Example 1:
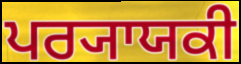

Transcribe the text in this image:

ਪਰ੍ਯਾਯਕੀ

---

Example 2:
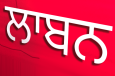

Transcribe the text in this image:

ਲਾਬਨ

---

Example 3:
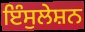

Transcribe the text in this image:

ਇੰਸੁਲੇਸ਼ਨ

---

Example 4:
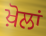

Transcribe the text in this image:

ਖ਼ੋਲਾਂ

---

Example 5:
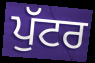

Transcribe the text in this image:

ਪੁੱਟਰ